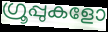
ഗ്രൂപ്പുകളോ